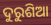
ଦୁରୁଶିଆ